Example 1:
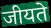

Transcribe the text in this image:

जीयते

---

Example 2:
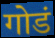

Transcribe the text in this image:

गोडं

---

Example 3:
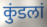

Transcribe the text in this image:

कुंडलां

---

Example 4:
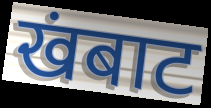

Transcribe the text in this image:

खंबाट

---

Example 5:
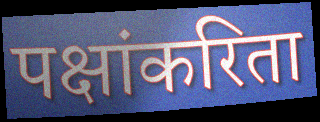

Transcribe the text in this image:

पक्षांकरिता